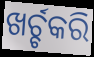
ଖର୍ଚ୍ଚକରି